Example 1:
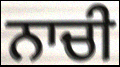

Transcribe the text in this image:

ਨਾਚੀ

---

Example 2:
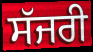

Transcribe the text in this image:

ਸੱਜਰੀ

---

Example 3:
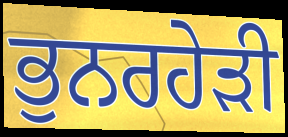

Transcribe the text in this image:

ਭੁਨਰਹੇੜੀ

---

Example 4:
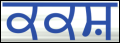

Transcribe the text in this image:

ਕਕਸ਼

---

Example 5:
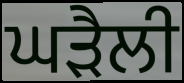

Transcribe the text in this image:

ਘੜੈਲੀ